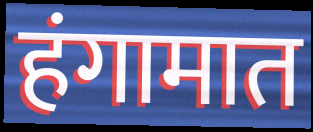
हंगामात